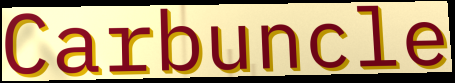
Carbuncle